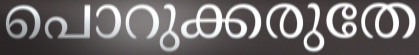
പൊറുക്കരുതേ